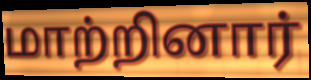
மாற்றினார்